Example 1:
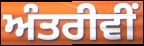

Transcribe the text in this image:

ਅੰਤਰੀਵੀਂ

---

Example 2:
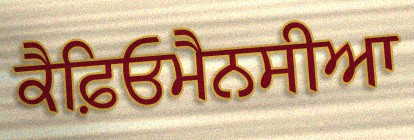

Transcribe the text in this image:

ਕੈਫ਼ਿਓਮੈਨਸੀਆ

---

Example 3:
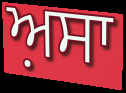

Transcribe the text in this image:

ਅ਼ਸਾ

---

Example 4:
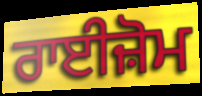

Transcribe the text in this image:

ਰਾਈਜ਼ੋਮ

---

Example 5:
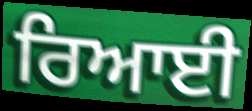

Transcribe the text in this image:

ਰਿਆਈ